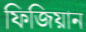
ফিজিয়ান